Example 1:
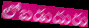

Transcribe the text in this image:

లోబడుదురు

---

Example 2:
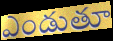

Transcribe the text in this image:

ఎండుతూ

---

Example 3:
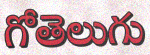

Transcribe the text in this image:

గోతెలుగు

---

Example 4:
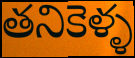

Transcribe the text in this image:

తనికెళ్ళ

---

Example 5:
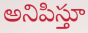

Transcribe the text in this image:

అనిపిస్తూ